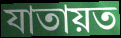
যাতায়ত